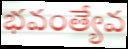
భవంత్యేవ